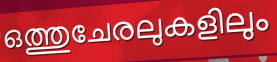
ഒത്തുചേരലുകളിലും